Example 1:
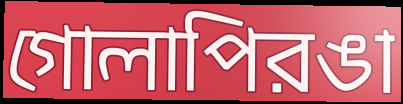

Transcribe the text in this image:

গোলাপিরঙা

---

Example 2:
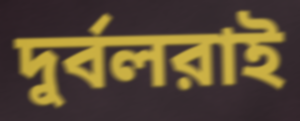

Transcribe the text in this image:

দুর্বলরাই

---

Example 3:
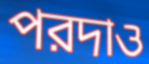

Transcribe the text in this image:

পরদাও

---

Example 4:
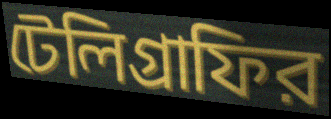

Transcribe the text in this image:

টেলিগ্রাফির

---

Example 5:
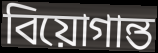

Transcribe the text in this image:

বিয়োগান্ত